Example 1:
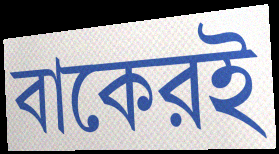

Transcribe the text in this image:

বাকেরই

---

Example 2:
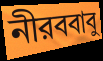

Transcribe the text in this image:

নীরববাবু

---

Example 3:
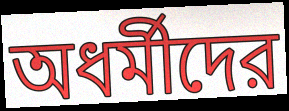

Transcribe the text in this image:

অধর্মীদের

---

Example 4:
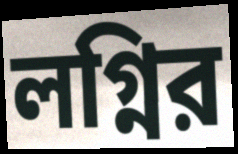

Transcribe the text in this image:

লগ্নির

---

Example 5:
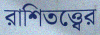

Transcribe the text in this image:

রাশিতত্ত্বের